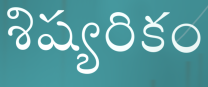
శిష్యరికం